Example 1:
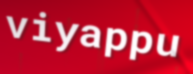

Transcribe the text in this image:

viyappu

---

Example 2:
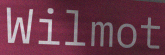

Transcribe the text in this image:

Wilmot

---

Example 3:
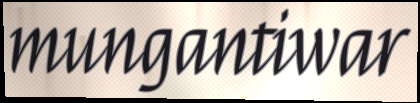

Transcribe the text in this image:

mungantiwar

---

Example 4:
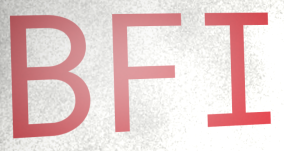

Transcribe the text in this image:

BFI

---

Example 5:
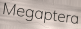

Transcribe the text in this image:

Megaptera